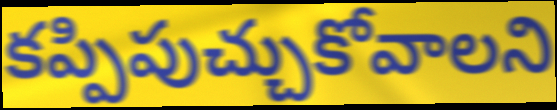
కప్పిపుచ్చుకోవాలని